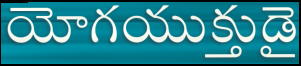
యోగయుక్తుడై